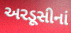
અરડૂસીનાં